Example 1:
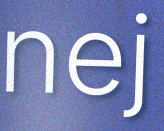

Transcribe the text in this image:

nej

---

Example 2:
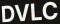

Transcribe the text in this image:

DVLC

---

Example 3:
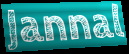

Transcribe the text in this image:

Jannal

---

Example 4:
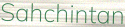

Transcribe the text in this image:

Sahchintan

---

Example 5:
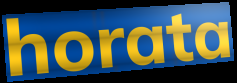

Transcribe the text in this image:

horata